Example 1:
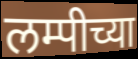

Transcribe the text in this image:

लम्पीच्या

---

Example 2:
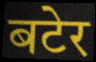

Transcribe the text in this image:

बटेर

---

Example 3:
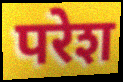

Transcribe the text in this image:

परेश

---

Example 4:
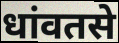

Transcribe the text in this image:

धांवतसे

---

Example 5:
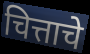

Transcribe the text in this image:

चित्ताचे